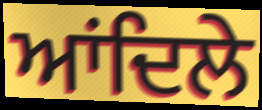
ਆਂਦਿਲੇ